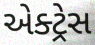
એક્ટ્રેસ